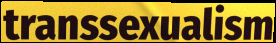
transsexualism